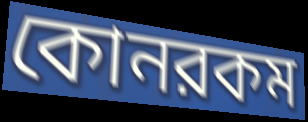
কোনরকম